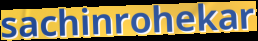
sachinrohekar